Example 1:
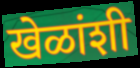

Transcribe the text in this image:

खेळांशी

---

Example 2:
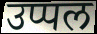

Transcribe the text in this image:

उप्पल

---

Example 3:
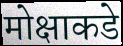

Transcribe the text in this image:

मोक्षाकडे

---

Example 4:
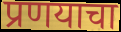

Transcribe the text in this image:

प्रणयाचा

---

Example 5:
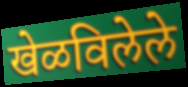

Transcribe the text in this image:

खेळविलेले